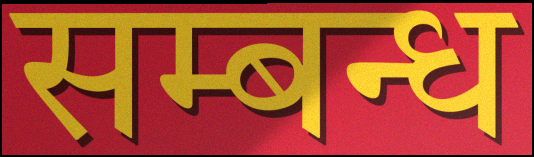
सम्बन्ध